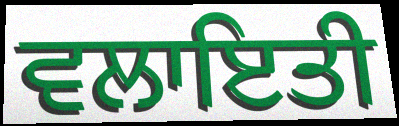
ਵਲਾਇਤੀ